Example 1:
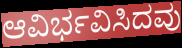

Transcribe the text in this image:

ಆವಿರ್ಭವಿಸಿದವು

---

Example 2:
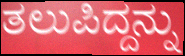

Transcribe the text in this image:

ತಲುಪಿದ್ದನ್ನು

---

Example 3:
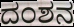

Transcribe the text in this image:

ದಂಶನ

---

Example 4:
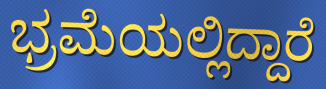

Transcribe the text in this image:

ಭ್ರಮೆಯಲ್ಲಿದ್ದಾರೆ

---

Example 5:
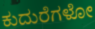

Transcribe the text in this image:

ಕುದುರೆಗಳೋ